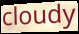
cloudy